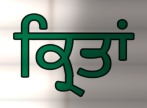
ਕ੍ਰਿਤਾਂ